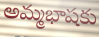
అమ్మభాషకు